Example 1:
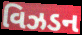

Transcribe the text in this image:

વિઝડન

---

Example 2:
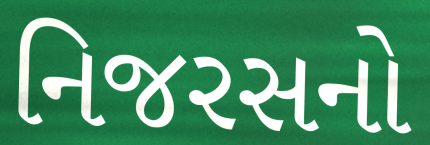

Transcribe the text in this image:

નિજરસનો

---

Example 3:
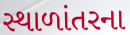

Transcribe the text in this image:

સ્થાળાંતરના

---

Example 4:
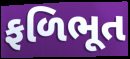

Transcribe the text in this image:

ફળિભૂત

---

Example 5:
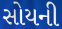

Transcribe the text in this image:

સોયની